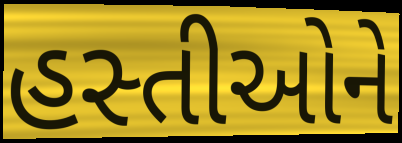
હસ્તીઓને